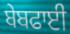
ਬੇਬਫਾਈ